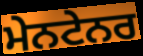
ਮੇਨਟੇਨਰ